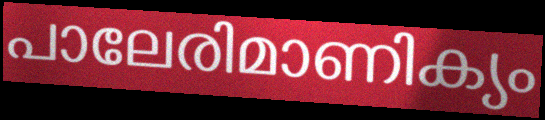
പാലേരിമാണിക്യം